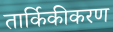
तार्किकीकरण